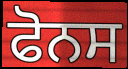
ਫੋਨਸ